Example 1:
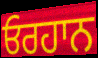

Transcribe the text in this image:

ਓਰਹਾਨ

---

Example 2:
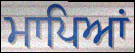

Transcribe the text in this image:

ਮਾਪਿਆਂ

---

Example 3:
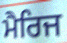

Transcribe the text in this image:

ਮੈਰਿਜ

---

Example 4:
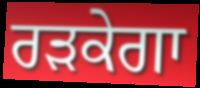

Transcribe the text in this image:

ਰੜਕੇਗਾ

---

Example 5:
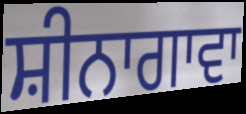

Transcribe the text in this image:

ਸ਼ੀਨਾਗਾਵਾ